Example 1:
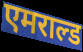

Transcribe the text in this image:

एमराल्ड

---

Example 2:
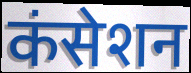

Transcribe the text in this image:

कंसेशन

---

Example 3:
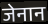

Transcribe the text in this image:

जेनान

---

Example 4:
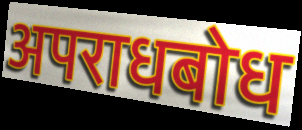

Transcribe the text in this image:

अपराधबोध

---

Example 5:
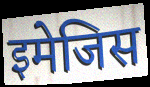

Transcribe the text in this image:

इमेजिस